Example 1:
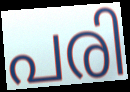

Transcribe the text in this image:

പരി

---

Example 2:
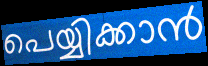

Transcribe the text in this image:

പെയ്യിക്കാൻ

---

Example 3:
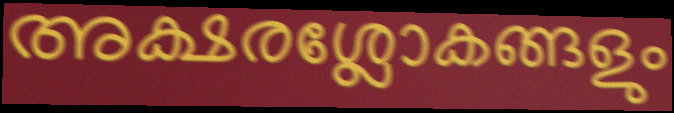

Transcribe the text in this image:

അക്ഷരശ്ലോകങ്ങളും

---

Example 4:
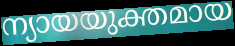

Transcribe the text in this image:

ന്യായയുക്തമായ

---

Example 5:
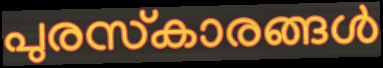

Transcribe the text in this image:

പുരസ്‌കാരങ്ങൾ